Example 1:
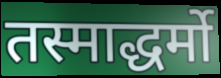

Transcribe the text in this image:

तस्माद्धर्मो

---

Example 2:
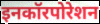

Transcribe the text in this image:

इनकॉरपोरेशन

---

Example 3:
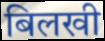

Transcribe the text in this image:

बिलखी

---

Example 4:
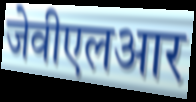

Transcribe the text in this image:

जेवीएलआर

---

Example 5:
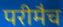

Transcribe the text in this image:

परीमैच